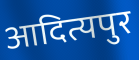
आदित्यपुर